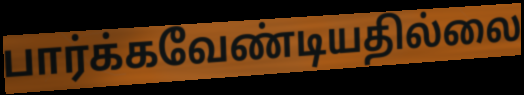
பார்க்கவேண்டியதில்லை